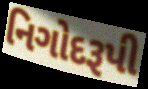
નિગોદરૂપી